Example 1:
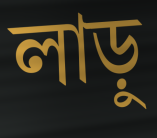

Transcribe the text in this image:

লাড়ু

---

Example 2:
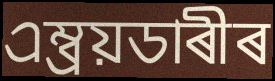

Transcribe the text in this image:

এম্ব্ৰয়ডাৰীৰ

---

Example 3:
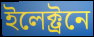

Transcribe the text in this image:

ইলেক্ট্ৰনে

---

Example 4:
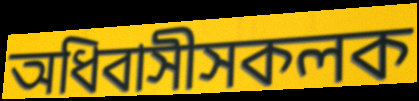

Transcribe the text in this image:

অধিবাসীসকলক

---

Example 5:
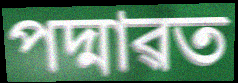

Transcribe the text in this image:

পদ্মাৱত